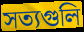
সত্যগুলি